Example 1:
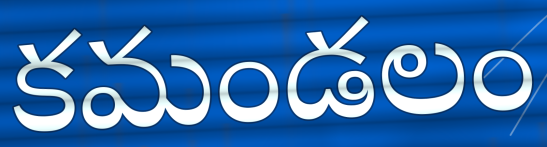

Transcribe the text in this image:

కమండలం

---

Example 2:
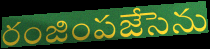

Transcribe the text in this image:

రంజింపజేసెను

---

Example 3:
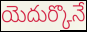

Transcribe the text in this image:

యెదుర్కొనే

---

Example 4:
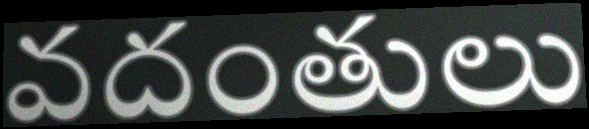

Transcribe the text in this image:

వదంతులు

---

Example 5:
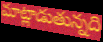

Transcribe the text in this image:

మాట్లాడుతున్నది